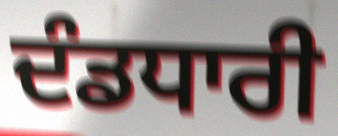
ਦੰਡਧਾਰੀ